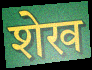
शेख